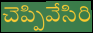
చెప్పివేసిరి